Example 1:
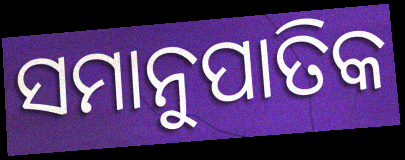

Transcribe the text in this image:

ସମାନୁପାତିକ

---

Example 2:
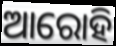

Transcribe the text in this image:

ଆରୋହି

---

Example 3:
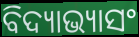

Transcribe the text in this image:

ବିଦ୍ୟାଭ୍ୟାସଂ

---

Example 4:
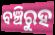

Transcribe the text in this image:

ବଞ୍ଚିରୁହ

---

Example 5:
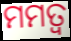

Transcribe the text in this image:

ମମତ୍ୱ